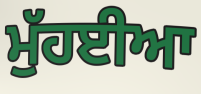
ਮੁੱਹਈਆ